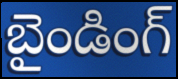
బైండింగ్